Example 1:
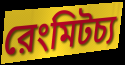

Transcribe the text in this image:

রেংমিটচ্য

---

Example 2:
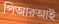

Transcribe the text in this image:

পিআরআই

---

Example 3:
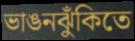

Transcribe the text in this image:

ভাঙনঝুঁকিতে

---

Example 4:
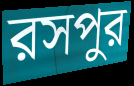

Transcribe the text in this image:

রসপুর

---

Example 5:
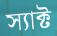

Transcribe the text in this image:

স্যাক্ট